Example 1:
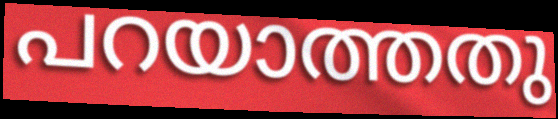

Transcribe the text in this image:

പറയാത്തതു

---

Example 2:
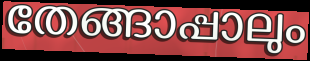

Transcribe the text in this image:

തേങ്ങാപ്പാലും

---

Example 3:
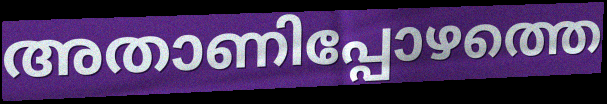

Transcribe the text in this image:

അതാണിപ്പോഴത്തെ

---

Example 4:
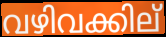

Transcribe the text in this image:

വഴിവക്കില്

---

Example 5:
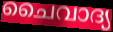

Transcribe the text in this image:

ചൈവാദ്യ